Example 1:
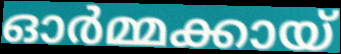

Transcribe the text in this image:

ഓർമ്മക്കായ്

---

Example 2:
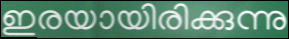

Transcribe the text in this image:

ഇരയായിരിക്കുന്നു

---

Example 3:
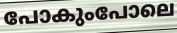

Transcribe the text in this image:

പോകുംപോലെ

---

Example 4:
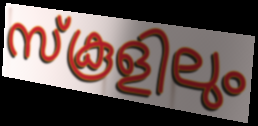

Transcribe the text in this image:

സ്കൂളിലും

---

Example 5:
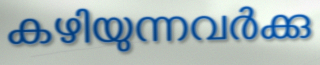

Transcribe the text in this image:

കഴിയുന്നവർക്കു